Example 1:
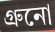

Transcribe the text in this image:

গ্রুনো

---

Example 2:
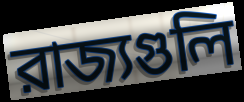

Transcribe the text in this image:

রাজ্যগুলি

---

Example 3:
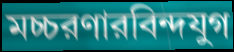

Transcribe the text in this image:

মচ্চরণারবিন্দযুগ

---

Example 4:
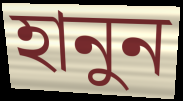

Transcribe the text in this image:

হানুন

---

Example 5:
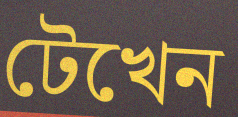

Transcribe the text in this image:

টেখেন